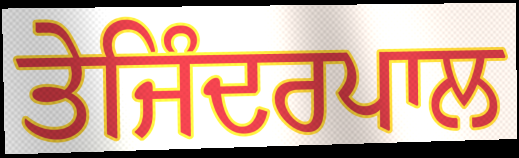
ਤੇਜਿੰਦਰਪਾਲ